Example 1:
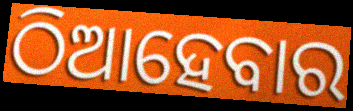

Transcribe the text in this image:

ଠିଆହେବାର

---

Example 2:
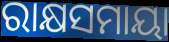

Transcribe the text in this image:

ରାକ୍ଷସମାୟା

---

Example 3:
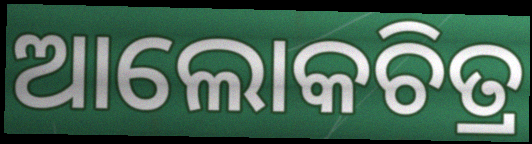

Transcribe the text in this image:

ଆଲୋକଚିତ୍ର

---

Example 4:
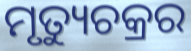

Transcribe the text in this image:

ମୃତ୍ୟୁଚକ୍ରର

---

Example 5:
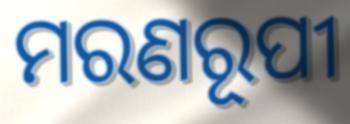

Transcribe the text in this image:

ମରଣରୂପୀ